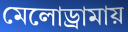
মেলোড্রামায়